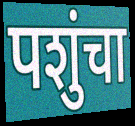
पशुंचा